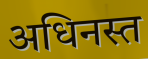
अधिनस्त